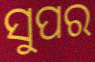
ସୁପର